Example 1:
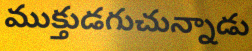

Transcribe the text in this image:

ముక్తుడగుచున్నాడు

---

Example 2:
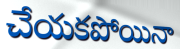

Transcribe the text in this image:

చేయకపోయినా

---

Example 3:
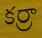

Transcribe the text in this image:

కర్రా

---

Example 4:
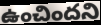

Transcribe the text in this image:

ఉంచిందని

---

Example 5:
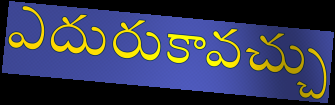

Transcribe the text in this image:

ఎదురుకావచ్చు